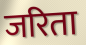
जरिता